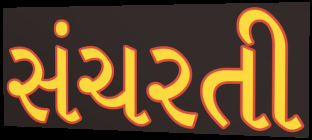
સંચરતી